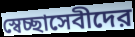
স্বেচ্ছাসেবীদের